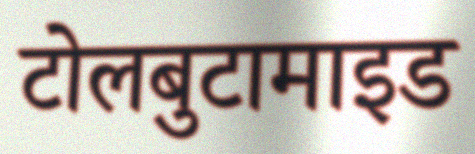
टोलबुटामाइड